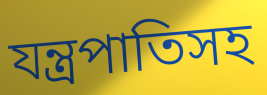
যন্ত্রপাতিসহ